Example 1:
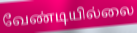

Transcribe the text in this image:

வேண்டியில்லை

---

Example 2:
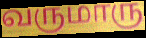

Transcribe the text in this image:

வருமாரு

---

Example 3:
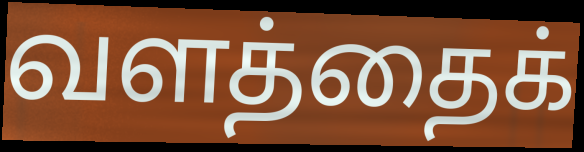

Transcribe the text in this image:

வளத்தைக்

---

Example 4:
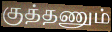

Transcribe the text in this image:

குத்தணும்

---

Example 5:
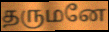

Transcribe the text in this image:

தருமனே